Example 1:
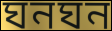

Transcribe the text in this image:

ঘনঘন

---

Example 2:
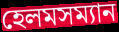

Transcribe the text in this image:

হেলমসম্যান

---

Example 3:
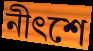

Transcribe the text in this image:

নীৎশে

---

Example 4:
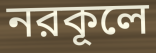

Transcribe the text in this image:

নরকূলে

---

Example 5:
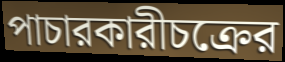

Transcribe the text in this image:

পাচারকারীচক্রের